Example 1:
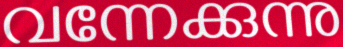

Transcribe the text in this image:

വന്നേക്കുന്നു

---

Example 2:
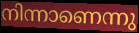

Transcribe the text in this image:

നിന്നാണെന്നു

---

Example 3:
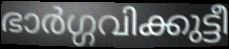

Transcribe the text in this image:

ഭാർഗ്ഗവിക്കുട്ടീ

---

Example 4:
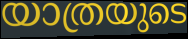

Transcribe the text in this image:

യാത്രയുടെ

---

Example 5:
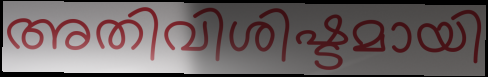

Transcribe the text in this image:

അതിവിശിഷ്ടമായി